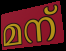
മന്